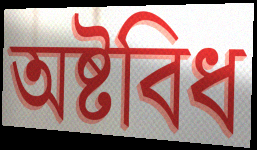
অষ্টবিধ